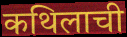
कथिलाची